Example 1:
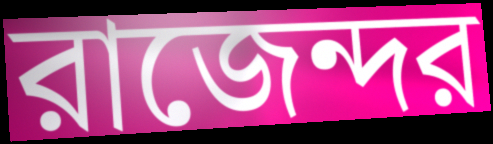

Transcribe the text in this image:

রাজেন্দর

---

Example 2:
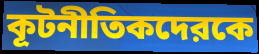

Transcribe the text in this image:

কূটনীতিকদেরকে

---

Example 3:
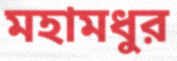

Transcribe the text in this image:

মহামধুর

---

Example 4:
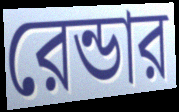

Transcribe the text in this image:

রেন্ডার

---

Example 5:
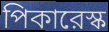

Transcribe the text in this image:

পিকারেস্ক